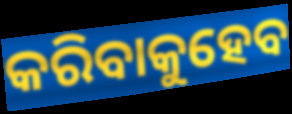
କରିବାକୁହେବ